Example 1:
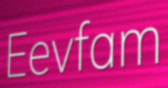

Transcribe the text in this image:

Eevfam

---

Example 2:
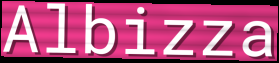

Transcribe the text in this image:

Albizza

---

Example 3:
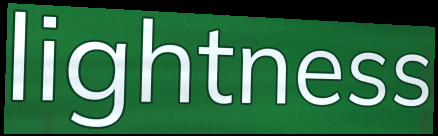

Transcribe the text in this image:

lightness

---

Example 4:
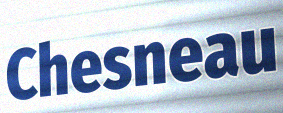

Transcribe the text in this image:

Chesneau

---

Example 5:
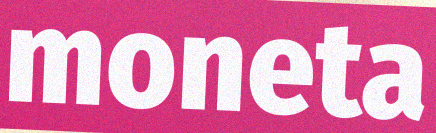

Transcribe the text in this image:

moneta